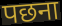
पछना